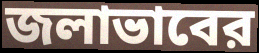
জলাভাবের